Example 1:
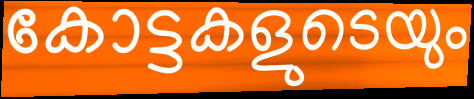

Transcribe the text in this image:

കോട്ടകളുടെയും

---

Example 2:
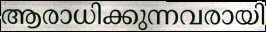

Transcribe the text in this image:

ആരാധിക്കുന്നവരായി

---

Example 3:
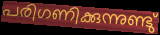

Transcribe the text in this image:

പരിഗണിക്കുന്നുണ്ടു്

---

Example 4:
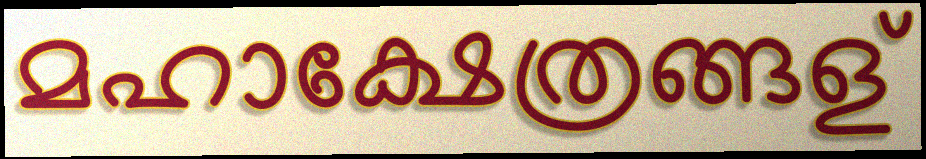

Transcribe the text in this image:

മഹാക്ഷേത്രങ്ങള്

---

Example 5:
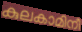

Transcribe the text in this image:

കുലകാമിനീ